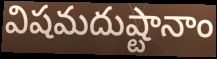
విషమదుష్టానాం